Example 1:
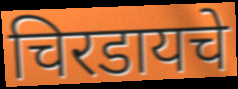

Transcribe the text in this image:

चिरडायचे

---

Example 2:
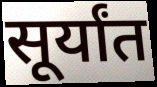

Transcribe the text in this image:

सूर्यांत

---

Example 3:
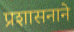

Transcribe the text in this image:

प्रशासनाने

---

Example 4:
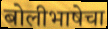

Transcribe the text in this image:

बोलीभाषेचा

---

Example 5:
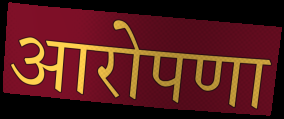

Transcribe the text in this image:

आरोपणा